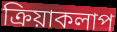
ক্রিয়াকলাপ